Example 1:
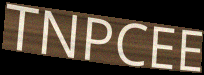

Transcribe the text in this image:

TNPCEE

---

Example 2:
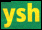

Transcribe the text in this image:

ysh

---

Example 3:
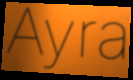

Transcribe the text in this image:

Ayra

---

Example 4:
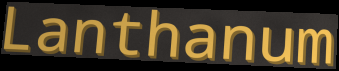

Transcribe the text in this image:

Lanthanum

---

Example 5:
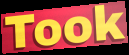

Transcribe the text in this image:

Took